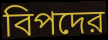
বিপদের